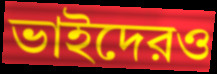
ভাইদেরও